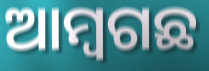
ଆମ୍ୱଗଛ